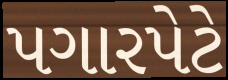
પગારપેટે